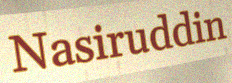
Nasiruddin